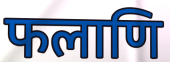
फलाणि